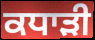
ਕਧਾੜੀ